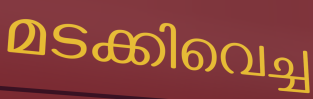
മടക്കിവെച്ച